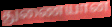
துணையான